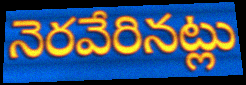
నెరవేరినట్లు